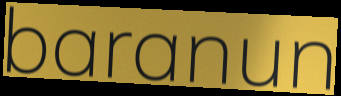
baranun